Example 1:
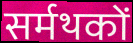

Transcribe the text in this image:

सर्मथकों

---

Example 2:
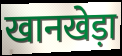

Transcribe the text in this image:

खानखेड़ा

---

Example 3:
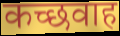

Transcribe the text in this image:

कच्छवाह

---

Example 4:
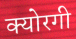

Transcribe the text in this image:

क्योरगी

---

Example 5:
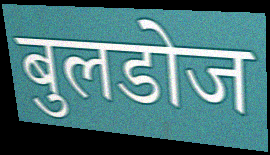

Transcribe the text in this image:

बुलडोज